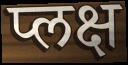
प्लक्ष